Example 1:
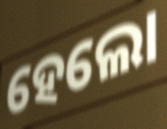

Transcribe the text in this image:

ହେଲୋ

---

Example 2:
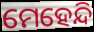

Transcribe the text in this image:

ମେହେନ୍ଦି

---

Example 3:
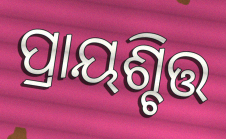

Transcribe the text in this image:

ପ୍ରାୟଶ୍ଚିତ୍ତ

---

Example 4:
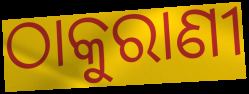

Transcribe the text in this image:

ଠାକୁରାଣୀ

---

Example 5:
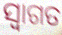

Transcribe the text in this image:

ସ୍ବାଗତ